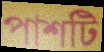
পাশটি